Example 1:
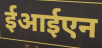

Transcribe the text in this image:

ईआईएन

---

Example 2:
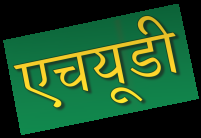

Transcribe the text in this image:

एचयूडी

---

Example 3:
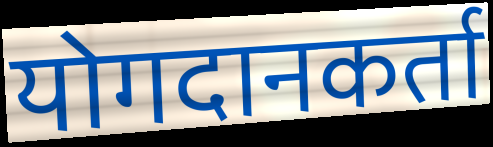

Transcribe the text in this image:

योगदानकर्ता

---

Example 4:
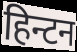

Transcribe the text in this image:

हिन्टन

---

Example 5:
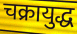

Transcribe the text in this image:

चक्रायुद्ध